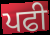
ਪਫੀ